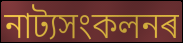
নাট্যসংকলনৰ